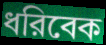
ধরিবেক